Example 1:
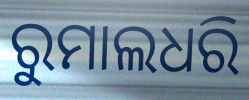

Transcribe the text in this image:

ରୁମାଲଧରି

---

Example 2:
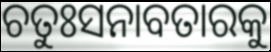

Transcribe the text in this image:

ଚତୁଃସନାବତାରକୁ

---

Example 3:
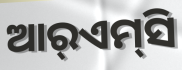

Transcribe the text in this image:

ଆର୍‌ଏମ୍‌ସି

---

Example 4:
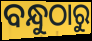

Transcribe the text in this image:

ବନ୍ଧୁଠାରୁ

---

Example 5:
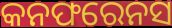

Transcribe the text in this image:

କନଫରେନସ